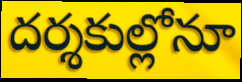
దర్శకుల్లోనూ